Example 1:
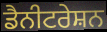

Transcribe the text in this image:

ਡੈਨੀਟਰੇਸ਼ਨ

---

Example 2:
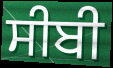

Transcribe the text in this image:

ਸੀਬੀ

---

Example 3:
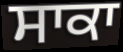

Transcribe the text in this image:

ਸਾਕਾ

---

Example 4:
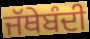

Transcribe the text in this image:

ਜੱਥੇਬੰਦੀ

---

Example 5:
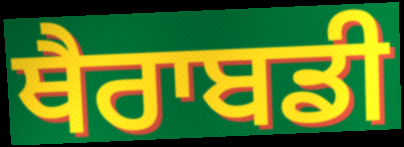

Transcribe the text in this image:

ਥੈਰਾਬਡੀ